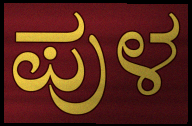
ಪುಳ